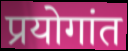
प्रयोगांत